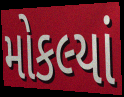
મોકલ્યાં